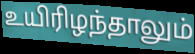
உயிரிழந்தாலும்